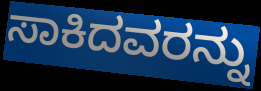
ಸಾಕಿದವರನ್ನು